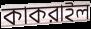
কাকরাইল